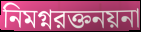
নিমগ্নরক্তনয়না